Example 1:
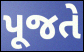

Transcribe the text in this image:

પૂજતે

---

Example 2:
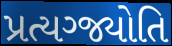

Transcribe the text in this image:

પ્રત્યગ્જ્યોતિ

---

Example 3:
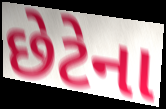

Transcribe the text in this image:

છેટેના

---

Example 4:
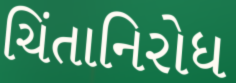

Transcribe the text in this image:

ચિંતાનિરોધ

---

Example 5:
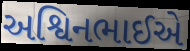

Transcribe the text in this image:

અશ્વિનભાઈએ